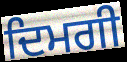
ਦਿਮਗੀ